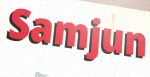
Samjun